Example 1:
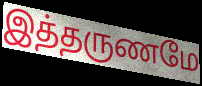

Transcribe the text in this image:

இத்தருணமே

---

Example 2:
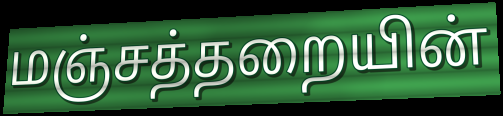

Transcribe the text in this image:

மஞ்சத்தறையின்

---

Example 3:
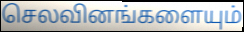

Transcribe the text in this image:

செலவினங்களையும்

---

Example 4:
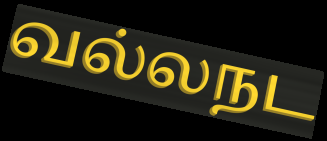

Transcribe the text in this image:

வல்லநட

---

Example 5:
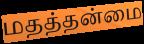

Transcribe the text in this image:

மதத்தன்மை